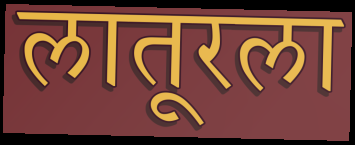
लातूरला